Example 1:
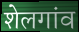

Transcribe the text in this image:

शेलगांव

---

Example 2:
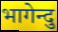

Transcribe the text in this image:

भागेन्दु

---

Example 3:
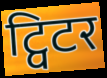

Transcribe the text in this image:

ट्विटर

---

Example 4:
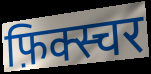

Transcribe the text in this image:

फ़िक्स्चर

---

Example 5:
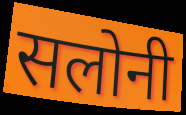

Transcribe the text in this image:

सलोनी